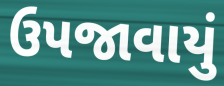
ઉપજાવાયું